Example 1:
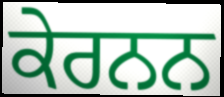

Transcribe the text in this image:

ਕੇਰਨਨ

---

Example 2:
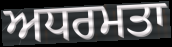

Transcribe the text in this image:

ਅਧਰਮਤਾ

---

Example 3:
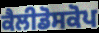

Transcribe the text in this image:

ਕੈਲੀਡੋਸਕੋਪ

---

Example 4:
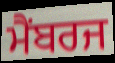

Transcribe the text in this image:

ਮੈਂਬਰਜ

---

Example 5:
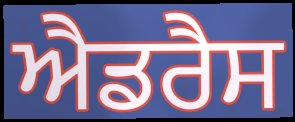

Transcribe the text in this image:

ਐਡਰੈਸ